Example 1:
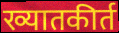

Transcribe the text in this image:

ख्यातकीर्त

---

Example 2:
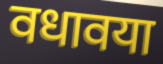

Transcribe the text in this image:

वधावया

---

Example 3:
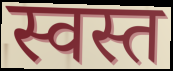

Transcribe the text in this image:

स्वस्त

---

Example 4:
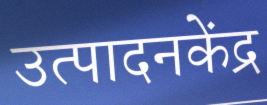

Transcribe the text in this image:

उत्पादनकेंद्र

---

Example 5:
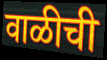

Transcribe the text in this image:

वाळीची